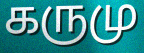
கருமு